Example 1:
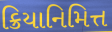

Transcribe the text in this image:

ક્રિયાનિમિત્ત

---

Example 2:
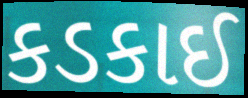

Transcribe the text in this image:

કડકાઈ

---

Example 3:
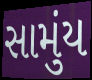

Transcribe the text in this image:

સામુંય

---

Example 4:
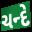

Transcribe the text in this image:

ચન્દે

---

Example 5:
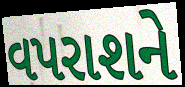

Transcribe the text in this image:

વપરાશને